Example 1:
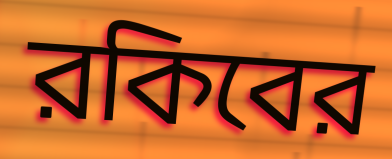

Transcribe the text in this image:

রকিবের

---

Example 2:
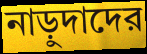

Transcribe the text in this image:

নাড়ুদাদের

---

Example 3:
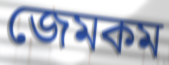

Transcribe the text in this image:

জেমকম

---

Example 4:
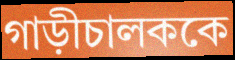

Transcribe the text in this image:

গাড়ীচালককে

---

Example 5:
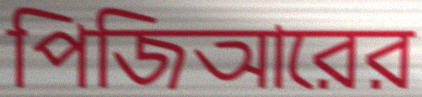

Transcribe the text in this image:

পিজিআরের